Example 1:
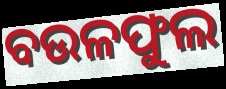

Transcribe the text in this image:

ବଉଳଫୁଲ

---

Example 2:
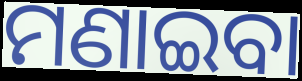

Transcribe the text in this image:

ମଣାଇବା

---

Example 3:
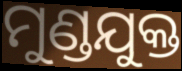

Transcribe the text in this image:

ମୁଣ୍ଡଯୁକ୍ତ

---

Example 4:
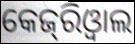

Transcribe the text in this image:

କେଜ୍‌ରିଓ୍ବାଲ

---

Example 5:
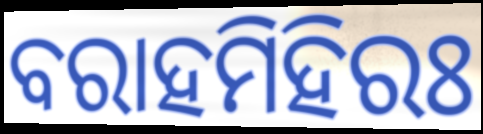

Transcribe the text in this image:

ବରାହମିହିରଃ